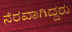
ನೆರವಾಗಿದ್ದರು